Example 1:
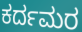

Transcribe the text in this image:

ಕರ್ದಮರ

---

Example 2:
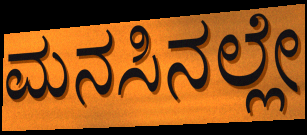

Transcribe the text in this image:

ಮನಸಿನಲ್ಲೇ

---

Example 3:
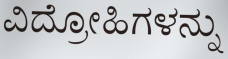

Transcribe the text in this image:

ವಿದ್ರೋಹಿಗಳನ್ನು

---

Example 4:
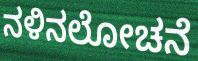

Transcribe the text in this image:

ನಳಿನಲೋಚನೆ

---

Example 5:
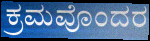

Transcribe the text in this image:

ಕ್ರಮವೊಂದರ